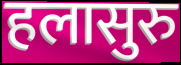
हलासुरु